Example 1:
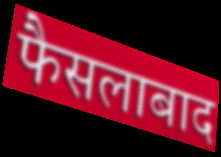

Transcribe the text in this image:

फैसलाबाद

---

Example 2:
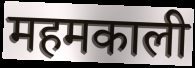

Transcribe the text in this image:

महमकाली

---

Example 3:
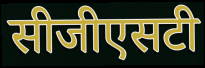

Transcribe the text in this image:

सीजीएसटी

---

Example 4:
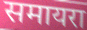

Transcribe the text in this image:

समायरा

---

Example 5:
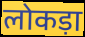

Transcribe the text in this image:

लोकड़ा